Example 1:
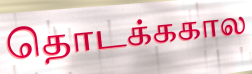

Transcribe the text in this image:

தொடக்ககால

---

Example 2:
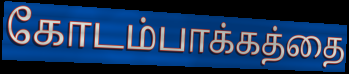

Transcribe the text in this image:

கோடம்பாக்கத்தை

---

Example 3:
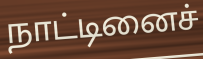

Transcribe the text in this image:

நாட்டினைச்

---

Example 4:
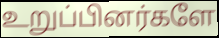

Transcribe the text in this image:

உறுப்பினர்களே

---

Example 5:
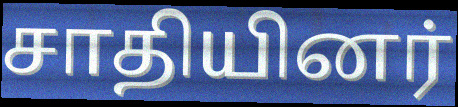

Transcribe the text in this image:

சாதியினர்